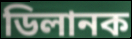
ডিলানক